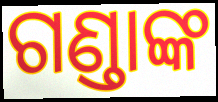
ଗଣ୍ଡାଙ୍କ